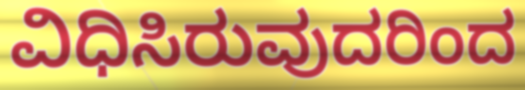
ವಿಧಿಸಿರುವುದರಿಂದ